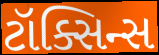
ટૉક્સિન્સ